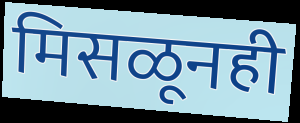
मिसळूनही